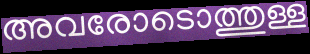
അവരോടൊത്തുള്ള